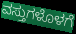
ವಸ್ತುಗಳೊಳಗೆ